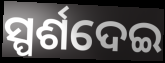
ସ୍ପର୍ଶଦେଇ